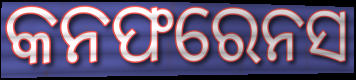
କନଫରେନସ